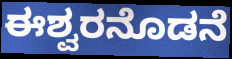
ಈಶ್ವರನೊಡನೆ